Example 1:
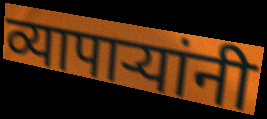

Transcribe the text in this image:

व्यापाऱ्यांनी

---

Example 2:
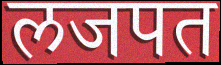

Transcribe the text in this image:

लजपत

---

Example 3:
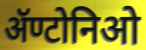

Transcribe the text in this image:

ॲण्टोनिओ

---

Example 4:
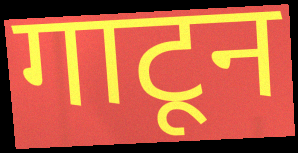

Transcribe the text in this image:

गाटून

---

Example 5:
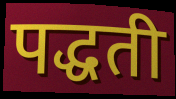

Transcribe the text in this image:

पद्धती